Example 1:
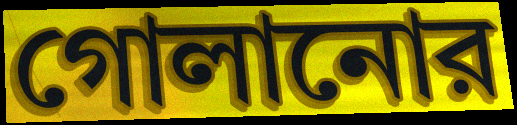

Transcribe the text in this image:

গোলানোর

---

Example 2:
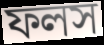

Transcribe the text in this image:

ফলস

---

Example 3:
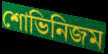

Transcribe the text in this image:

শোভিনিজম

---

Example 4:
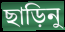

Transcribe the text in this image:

ছাড়িনু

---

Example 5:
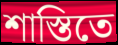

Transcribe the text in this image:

শাস্তিতে